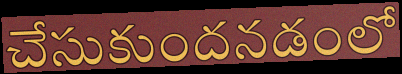
చేసుకుందనడంలో